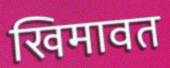
खिमावत